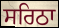
ਸਰਿਠਾ